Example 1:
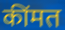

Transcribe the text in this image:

कींमत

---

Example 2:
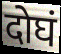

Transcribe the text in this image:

दोघं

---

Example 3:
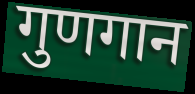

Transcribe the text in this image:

गुणगान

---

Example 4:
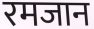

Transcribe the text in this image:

रमजान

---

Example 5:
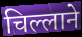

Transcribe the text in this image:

चिल्लाने